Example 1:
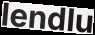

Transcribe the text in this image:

lendlu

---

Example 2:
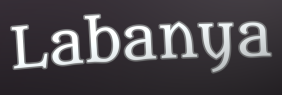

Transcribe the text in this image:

Labanya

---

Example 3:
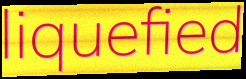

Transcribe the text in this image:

liquefied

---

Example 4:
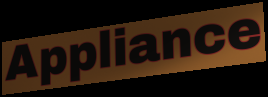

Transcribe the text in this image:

Appliance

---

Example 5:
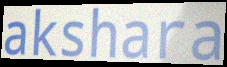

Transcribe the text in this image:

akshara